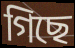
গিছে